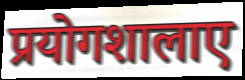
प्रयोगशालाए